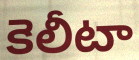
కెలీటా